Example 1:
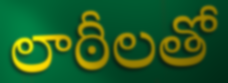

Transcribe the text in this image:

లాఠీలతో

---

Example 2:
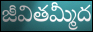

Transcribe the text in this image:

జీవితమ్మీద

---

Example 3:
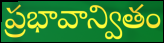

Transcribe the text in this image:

ప్రభావాన్వితం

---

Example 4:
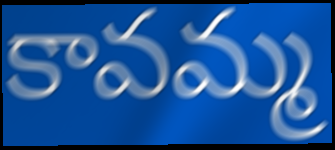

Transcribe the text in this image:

కావమ్మ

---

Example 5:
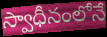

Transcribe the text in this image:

స్వాధీనంలోనే